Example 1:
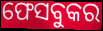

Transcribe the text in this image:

ଫେସବୁକର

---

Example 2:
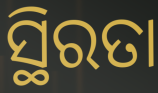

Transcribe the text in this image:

ସ୍ଥିରତା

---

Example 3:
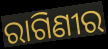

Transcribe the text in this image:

ରାଗିଣୀର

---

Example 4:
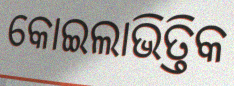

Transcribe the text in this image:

କୋଇଲାଭିତ୍ତିକ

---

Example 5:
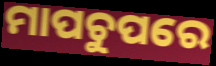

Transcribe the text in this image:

ମାପଚୁପରେ